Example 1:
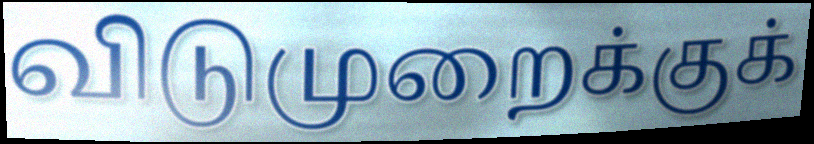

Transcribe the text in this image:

விடுமுறைக்குக்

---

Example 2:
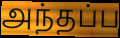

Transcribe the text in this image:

அந்தப்ப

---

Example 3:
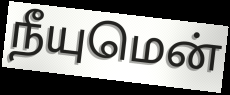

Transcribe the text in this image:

நீயுமென்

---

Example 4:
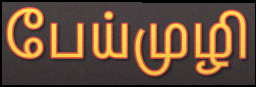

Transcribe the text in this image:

பேய்முழி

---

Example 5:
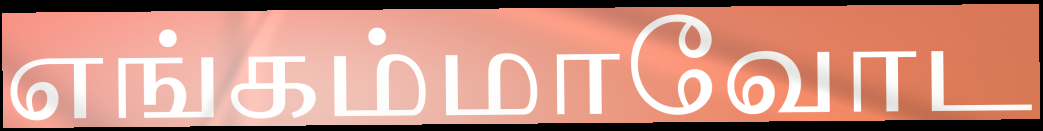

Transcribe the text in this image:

எங்கம்மாவோட